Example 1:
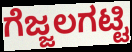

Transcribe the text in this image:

ಗೆಜ್ಜಲಗಟ್ಟಿ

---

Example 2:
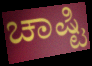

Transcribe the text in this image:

ಚಾಷ್ಟಿ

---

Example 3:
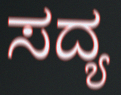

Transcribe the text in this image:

ಸದ್ಯ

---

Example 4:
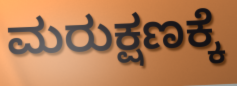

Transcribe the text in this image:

ಮರುಕ್ಷಣಕ್ಕೆ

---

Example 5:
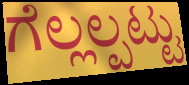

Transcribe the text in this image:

ಗೆಲ್ಲಲ್ಪಟ್ಟು